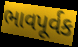
ભાવપૂર્વક